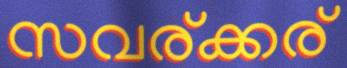
സവര്ക്കര്